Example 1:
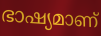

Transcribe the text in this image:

ഭാഷ്യമാണ്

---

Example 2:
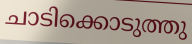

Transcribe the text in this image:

ചാടിക്കൊടുത്തു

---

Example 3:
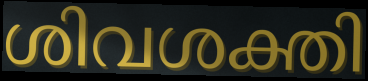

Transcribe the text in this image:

ശിവശക്തി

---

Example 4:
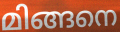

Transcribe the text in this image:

മിങ്ങനെ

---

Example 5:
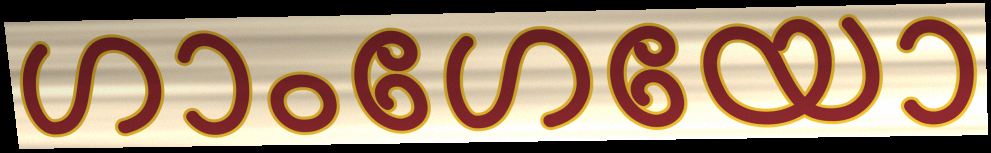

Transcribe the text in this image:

ഗാംഗേയോ